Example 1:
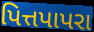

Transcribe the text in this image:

પિત્તપાપરા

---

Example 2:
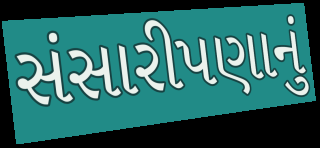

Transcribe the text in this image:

સંસારીપણાનું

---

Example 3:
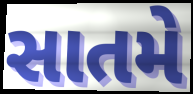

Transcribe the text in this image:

સાતમે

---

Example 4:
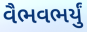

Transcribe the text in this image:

વૈભવભર્યું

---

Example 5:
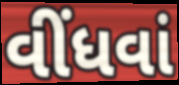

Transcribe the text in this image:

વીંધવાં